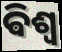
ଵିଶ୍ୱ